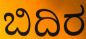
ಬಿದಿರ